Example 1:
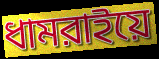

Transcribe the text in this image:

ধামরাইয়ে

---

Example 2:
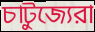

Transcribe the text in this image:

চাটুজ্যেরা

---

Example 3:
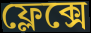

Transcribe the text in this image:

ফ্লেক্সে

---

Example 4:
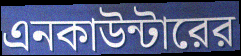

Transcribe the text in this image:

এনকাউন্টারের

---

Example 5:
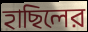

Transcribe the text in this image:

হাছিলের